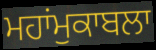
ਮਹਾਂਮੁਕਾਬਲਾ